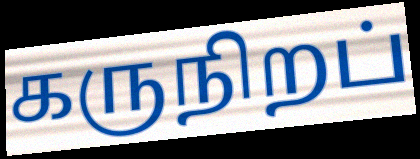
கருநிறப்